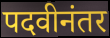
पदवीनंतर